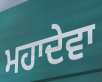
ਮਹਾਦੇਵਾ